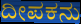
ದೀಪಕನು